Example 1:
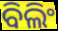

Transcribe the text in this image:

ବିଲିଂ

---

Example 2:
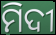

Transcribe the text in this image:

ମିଦୀ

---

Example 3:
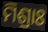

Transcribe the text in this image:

ମିଶ୍ରାଃ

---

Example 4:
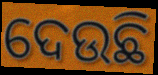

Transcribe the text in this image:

ଦେଉଛି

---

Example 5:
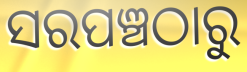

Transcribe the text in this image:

ସରପଞ୍ଚଠାରୁ